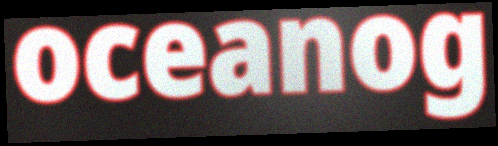
oceanog